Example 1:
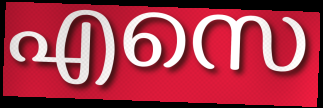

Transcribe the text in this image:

എസെ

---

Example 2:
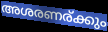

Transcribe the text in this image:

അശരണര്ക്കും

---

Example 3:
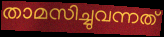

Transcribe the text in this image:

താമസിച്ചുവന്നത്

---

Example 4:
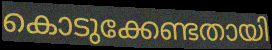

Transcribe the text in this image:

കൊടുക്കേണ്ടതായി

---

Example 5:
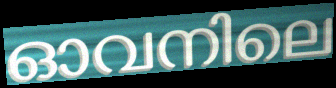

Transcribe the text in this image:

ഓവനിലെ